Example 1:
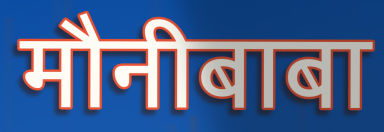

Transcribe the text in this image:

मौनीबाबा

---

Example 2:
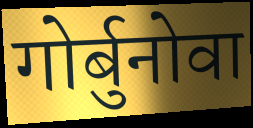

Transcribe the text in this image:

गोर्बुनोवा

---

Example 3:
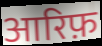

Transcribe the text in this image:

आरिफ़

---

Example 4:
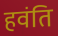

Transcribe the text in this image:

हवंति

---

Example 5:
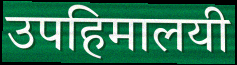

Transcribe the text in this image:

उपहिमालयी